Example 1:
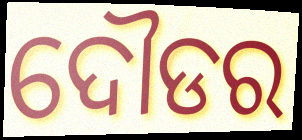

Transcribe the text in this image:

ଦୌଡର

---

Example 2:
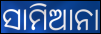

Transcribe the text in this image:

ସାମିଆନା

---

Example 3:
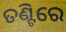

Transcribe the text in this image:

ତଣ୍ଟିରେ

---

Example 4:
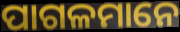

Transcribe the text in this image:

ପାଗଳମାନେ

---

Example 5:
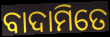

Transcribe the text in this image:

ବାଦାମିତେ